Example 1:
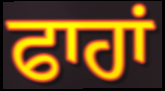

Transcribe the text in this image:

ਫਾਹਾਂ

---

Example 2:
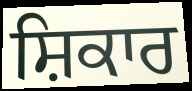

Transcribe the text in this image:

ਸ਼ਿਕਾਰ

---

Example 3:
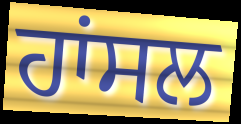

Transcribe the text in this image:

ਹਾਂਸਲ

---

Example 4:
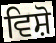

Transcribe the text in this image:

ਵਿਸ਼ੋ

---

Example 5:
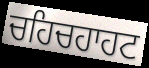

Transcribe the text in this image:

ਚਹਿਚਹਾਹਟ